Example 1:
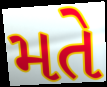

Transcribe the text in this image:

મતે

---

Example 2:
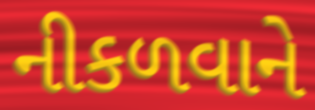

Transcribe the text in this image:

નીકળવાને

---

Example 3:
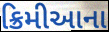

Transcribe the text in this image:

ક્રિમીઆના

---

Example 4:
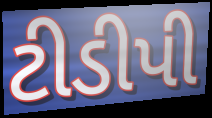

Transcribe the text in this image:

ટીડીપી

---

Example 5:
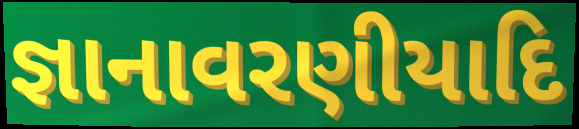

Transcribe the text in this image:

જ્ઞાનાવરણીયાદિ